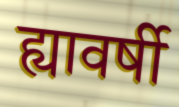
ह्यावर्षी